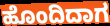
ಹೊಂದಿದಾಗ